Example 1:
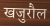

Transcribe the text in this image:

खजुरौल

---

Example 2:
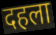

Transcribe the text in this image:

दहला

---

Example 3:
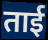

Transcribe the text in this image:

ताई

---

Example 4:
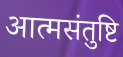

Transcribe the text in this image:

आत्मसंतुष्टि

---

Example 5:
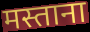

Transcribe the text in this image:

मस्ताना